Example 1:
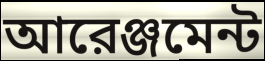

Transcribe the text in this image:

আরেঞ্জমেন্ট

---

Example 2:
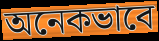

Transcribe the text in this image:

অনেকভাবে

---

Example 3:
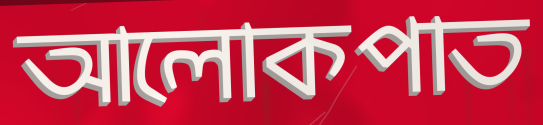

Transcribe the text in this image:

আলোকপাত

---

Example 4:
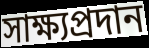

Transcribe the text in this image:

সাক্ষ্যপ্রদান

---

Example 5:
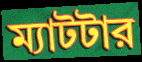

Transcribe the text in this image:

ম্যাটটার